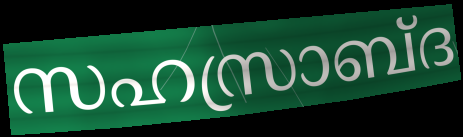
സഹസ്രാബ്ദ